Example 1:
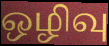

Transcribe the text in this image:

ஒழிவு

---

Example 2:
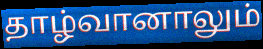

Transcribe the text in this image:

தாழ்வானாலும்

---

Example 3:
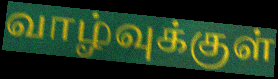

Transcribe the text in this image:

வாழ்வுக்குள்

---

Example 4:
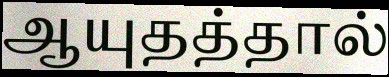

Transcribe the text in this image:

ஆயுதத்தால்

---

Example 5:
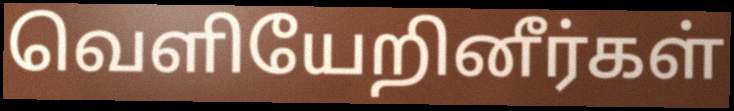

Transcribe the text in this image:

வெளியேறினீர்கள்